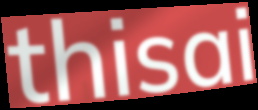
thisai